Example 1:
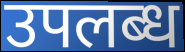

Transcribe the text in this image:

उपलब्‍ध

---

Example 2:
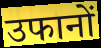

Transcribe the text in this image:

उफानों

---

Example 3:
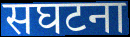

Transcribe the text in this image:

सघटना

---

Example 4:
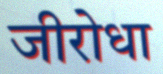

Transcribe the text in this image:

जीरोधा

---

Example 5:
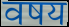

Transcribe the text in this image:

वषय